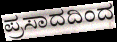
ಪ್ರಸಾದದಿಂದ